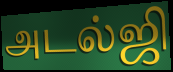
அடல்ஜி